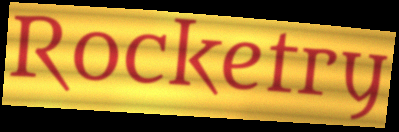
Rocketry